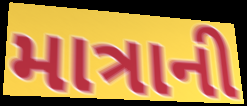
માત્રાની